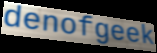
denofgeek